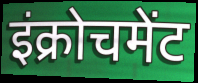
इंक्रोचमेंट